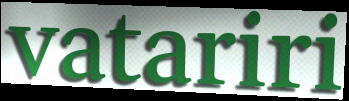
vatariri